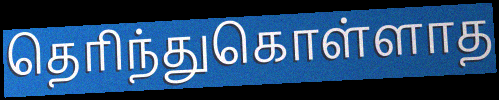
தெரிந்துகொள்ளாத